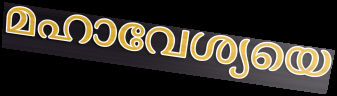
മഹാവേശ്യയെ